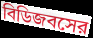
বিডিজবসের